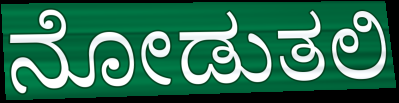
ನೋಡುತಲಿ